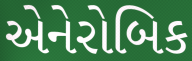
એનેરોબિક